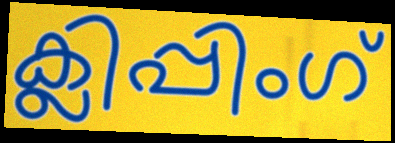
ക്ലിപ്പിംഗ്